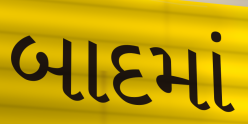
બાદમાં